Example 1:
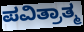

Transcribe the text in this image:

ಪವಿತ್ರಾತ್ಮ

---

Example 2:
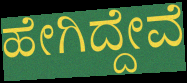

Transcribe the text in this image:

ಹೇಗಿದ್ದೇವೆ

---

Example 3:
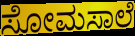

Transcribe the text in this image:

ಸೋಮಸಾಲೆ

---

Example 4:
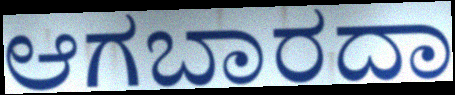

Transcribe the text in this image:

ಆಗಬಾರದಾ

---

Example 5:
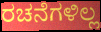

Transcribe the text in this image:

ರಚನೆಗಳಿಲ್ಲ